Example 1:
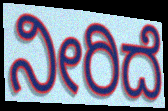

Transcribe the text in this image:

ನೀರಿದೆ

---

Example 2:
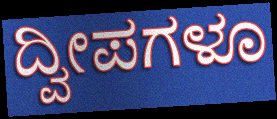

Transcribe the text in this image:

ದ್ವೀಪಗಳೂ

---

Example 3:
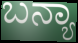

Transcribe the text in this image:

ಬನ್ಯಾ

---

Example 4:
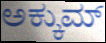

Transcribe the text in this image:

ಅಕ್ಕುಮ್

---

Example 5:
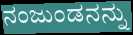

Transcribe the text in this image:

ನಂಜುಂಡನನ್ನು